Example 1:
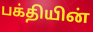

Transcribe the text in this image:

பக்தியின்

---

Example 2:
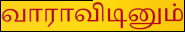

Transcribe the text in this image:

வாராவிடினும்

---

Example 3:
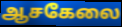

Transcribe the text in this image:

ஆசகேலை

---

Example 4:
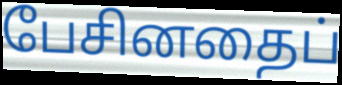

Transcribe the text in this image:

பேசினதைப்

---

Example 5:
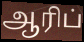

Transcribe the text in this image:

ஆரிப்